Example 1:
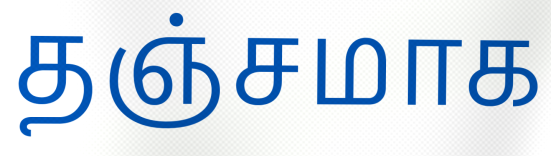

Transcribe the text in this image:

தஞ்சமாக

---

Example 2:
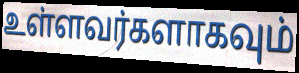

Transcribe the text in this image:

உள்ளவர்களாகவும்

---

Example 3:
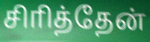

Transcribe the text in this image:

சிரித்தேன்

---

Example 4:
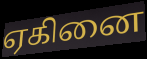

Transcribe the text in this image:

ஏகினை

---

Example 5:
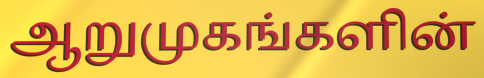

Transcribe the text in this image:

ஆறுமுகங்களின்